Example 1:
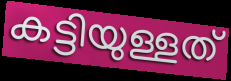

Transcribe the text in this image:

കട്ടിയുള്ളത്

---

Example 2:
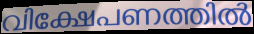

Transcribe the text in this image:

വിക്ഷേപണത്തിൽ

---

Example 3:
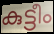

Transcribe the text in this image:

കുട്ടീം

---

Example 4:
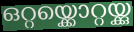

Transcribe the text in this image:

ഒറ്റയ്ക്കൊറ്റയ്ക്കു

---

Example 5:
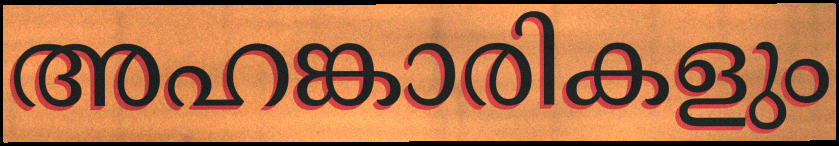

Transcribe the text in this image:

അഹങ്കാരികളും